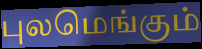
புலமெங்கும்